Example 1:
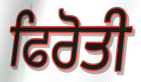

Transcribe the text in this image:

ਫਿਰੋਤੀ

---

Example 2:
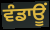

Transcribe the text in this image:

ਵੰਡਾਊਂ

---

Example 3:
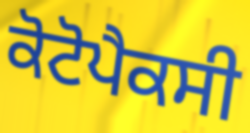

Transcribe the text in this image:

ਕੋਟੋਪੈਕਸੀ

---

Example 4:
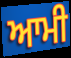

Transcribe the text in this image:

ਆਮੀ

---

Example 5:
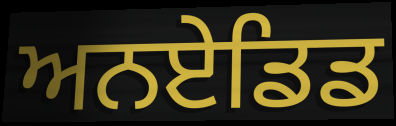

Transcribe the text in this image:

ਅਨਏਡਿਡ